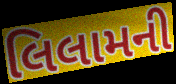
લિલામની